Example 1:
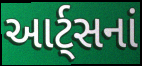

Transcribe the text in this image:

આર્ટ્સનાં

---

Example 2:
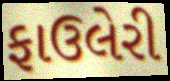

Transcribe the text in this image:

ફાઉલેરી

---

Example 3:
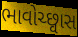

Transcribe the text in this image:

ભાવોચ્છ્વાસ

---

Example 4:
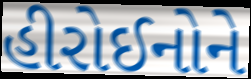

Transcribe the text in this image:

હીરોઈનોને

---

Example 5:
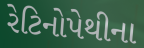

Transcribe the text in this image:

રેટિનોપેથીના